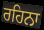
ਰਹਿਨਾ